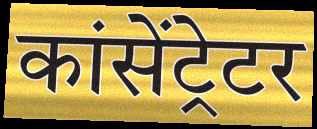
कांसेंट्रेटर